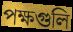
পক্ষগুলি